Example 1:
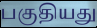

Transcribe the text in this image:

பகுதியது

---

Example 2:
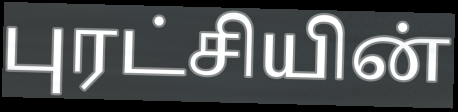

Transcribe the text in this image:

புரட்சியின்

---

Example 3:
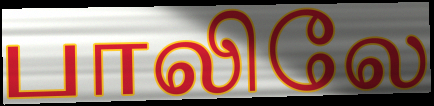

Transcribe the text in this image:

பாலிலே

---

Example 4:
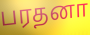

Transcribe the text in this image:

பரதனா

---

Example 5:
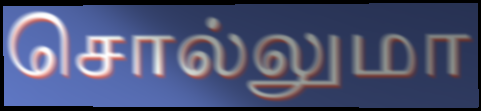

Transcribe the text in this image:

சொல்லுமா